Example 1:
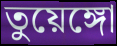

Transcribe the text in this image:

তুয়েঙ্গো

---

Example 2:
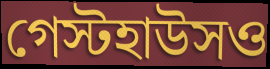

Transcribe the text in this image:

গেস্টহাউসও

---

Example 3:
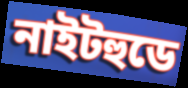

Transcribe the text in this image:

নাইটহুডে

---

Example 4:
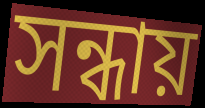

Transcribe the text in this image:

সন্ধায়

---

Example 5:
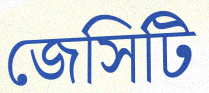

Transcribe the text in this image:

জেসিটি